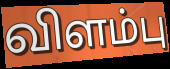
விளம்பு